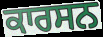
ਕਾਰਸਨ